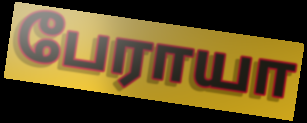
பேராயா